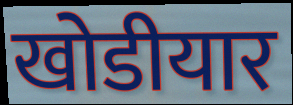
खोडीयार